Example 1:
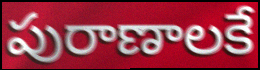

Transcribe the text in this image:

పురాణాలకే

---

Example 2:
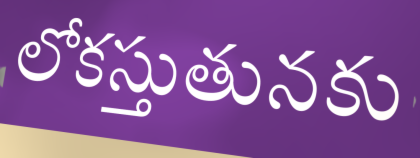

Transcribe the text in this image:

లోకస్తుతునకు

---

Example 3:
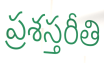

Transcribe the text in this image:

ప్రశస్తరీతి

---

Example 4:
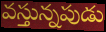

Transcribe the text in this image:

వస్తున్నపుడు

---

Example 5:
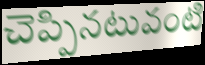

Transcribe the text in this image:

చెప్పినటువంటి